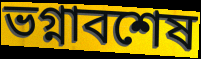
ভগ্নাবশেষ